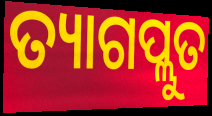
ତ୍ୟାଗପ୍ଲୁତ